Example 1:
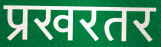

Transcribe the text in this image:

प्रखरतर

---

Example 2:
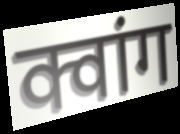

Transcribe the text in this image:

क्वांग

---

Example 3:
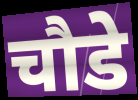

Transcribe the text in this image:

चौडे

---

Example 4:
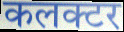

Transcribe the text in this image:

कलक्टर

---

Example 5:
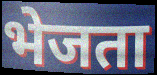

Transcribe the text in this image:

भेजता